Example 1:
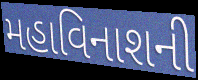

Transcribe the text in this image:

મહાવિનાશની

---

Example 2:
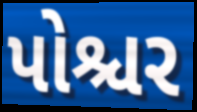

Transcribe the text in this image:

પોશ્ચર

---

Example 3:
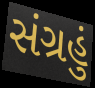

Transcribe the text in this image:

સંગ્રહું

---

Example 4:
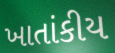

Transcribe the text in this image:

ખાતાંકીય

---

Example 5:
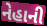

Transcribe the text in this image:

નેહાની